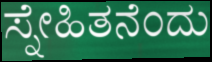
ಸ್ನೇಹಿತನೆಂದು